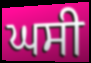
ਘਸੀ